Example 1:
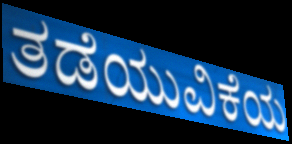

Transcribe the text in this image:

ತಡೆಯುವಿಕೆಯ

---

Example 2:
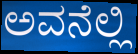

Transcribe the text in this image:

ಅವನೆಲ್ಲಿ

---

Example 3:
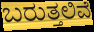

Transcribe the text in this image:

ಬರುತ್ತಲಿವೆ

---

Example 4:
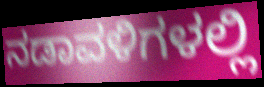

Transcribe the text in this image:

ನಡಾವಳಿಗಳಲ್ಲಿ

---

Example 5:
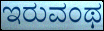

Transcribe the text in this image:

ಇರುವಂಥ